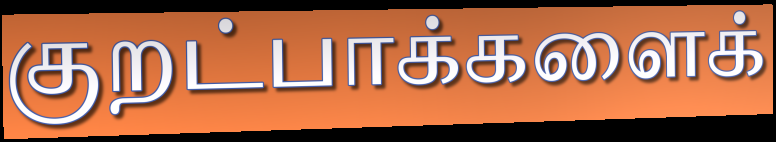
குறட்பாக்களைக்